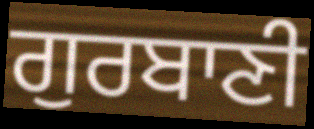
ਗੁਰਬਾਣੀ